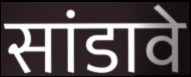
सांडावे